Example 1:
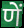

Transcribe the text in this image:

णें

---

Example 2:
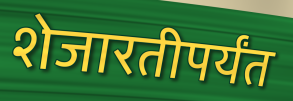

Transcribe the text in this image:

शेजारतीपर्यंत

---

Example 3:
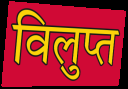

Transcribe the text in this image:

विलुप्त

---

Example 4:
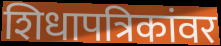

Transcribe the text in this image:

शिधापत्रिकांवर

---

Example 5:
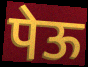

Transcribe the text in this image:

पेऊ